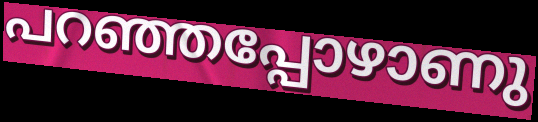
പറഞ്ഞപ്പോഴാണു